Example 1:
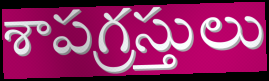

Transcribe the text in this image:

శాపగ్రస్తులు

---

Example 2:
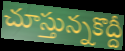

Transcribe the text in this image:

చూస్తున్నకొద్దీ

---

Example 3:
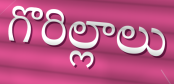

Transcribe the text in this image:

గొరిల్లాలు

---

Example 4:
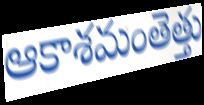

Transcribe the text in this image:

ఆకాశమంతెత్తు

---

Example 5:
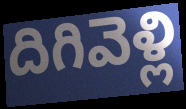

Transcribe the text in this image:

దిగివెళ్లి